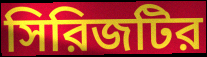
সিরিজটির